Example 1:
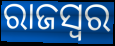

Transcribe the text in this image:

ରାଜସ୍ବର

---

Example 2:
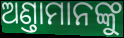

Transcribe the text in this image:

ଅଣ୍ତାମାନଙ୍କୁ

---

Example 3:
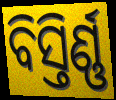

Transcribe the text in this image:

ବିସ୍ତିର୍ଣ୍ଣ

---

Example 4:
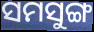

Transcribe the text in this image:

ସମସୁଙ୍ଗ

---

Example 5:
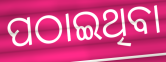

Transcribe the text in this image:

ପଠାଇଥିବା